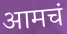
आमचं